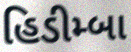
હિડીમ્બા